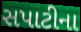
સપાટીના